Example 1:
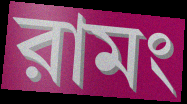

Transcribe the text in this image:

রামং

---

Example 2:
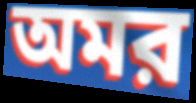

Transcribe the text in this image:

অমর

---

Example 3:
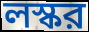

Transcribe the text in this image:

লস্কর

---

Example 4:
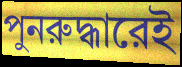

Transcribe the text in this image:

পুনরুদ্ধারেই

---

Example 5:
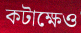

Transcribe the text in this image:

কটাক্ষেও